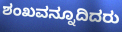
ಶಂಖವನ್ನೂದಿದರು